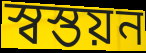
স্বস্তয়ন